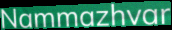
Nammazhvar